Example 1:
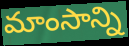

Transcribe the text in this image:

మాంసాన్ని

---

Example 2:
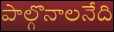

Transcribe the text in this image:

పాల్గొనాలనేది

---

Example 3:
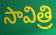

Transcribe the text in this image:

సావిత్రి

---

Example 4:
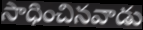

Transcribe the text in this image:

సాధించినవాడు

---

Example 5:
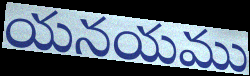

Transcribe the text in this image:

యనయము